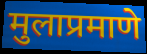
मुलाप्रमाणे